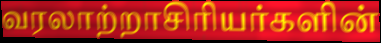
வரலாற்றாசிரியர்களின்